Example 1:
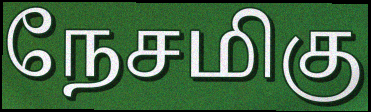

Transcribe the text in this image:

நேசமிகு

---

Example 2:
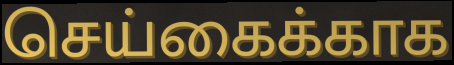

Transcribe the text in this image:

செய்கைக்காக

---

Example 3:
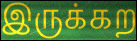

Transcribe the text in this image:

இருக்கற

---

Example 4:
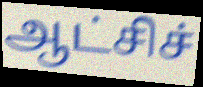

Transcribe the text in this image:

ஆட்சிச்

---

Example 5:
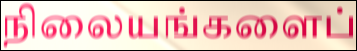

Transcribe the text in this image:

நிலையங்களைப்